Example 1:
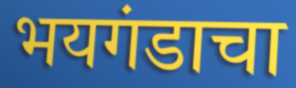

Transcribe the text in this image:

भयगंडाचा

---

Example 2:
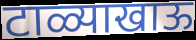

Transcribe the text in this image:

टाळ्याखाऊ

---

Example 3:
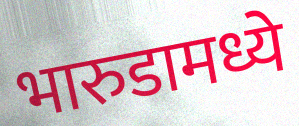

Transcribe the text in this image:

भारुडामध्ये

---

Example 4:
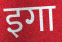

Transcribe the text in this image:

इगा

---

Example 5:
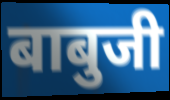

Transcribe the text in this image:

बाबुजी